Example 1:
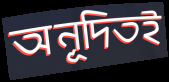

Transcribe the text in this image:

অনূদিতই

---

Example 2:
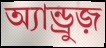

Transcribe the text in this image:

অ্যান্ড্রুজ়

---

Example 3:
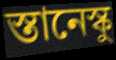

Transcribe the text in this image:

স্তানেস্কু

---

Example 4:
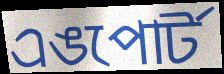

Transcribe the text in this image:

এঙপোর্ট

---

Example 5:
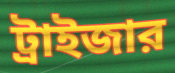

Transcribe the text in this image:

ট্রাইজার